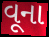
વૂના